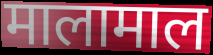
मालामाल